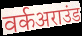
वर्कअराउंड